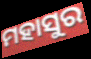
ମହାସୁର